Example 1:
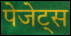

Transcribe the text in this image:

पेजेट्स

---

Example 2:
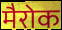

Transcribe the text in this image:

मैरोक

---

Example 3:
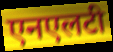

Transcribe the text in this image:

एनएलटी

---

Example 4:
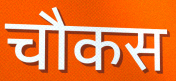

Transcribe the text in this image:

चौकस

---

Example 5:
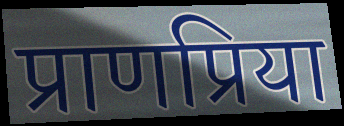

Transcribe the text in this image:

प्राणप्रिया